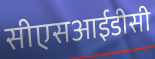
सीएसआईडीसी